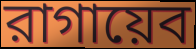
রাগায়েব